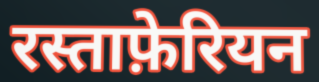
रस्ताफ़ेरियन